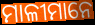
ମାଳୀମାନେ